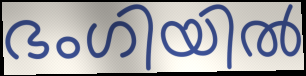
ഭംഗിയിൽ